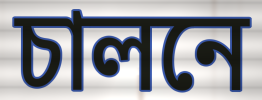
চালনে